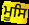
ਮੂਸਿ